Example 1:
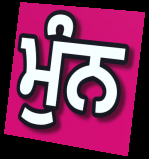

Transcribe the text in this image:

ਮੁੰਨ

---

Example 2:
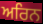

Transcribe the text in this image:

ਅਰਿਨ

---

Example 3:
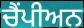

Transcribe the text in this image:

ਚੈਂਪੀਅਨ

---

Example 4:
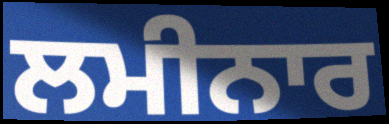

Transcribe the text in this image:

ਲਮੀਨਾਰ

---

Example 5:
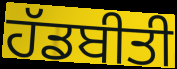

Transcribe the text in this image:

ਹੱਡਬੀਤੀ